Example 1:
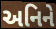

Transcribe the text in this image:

અનિને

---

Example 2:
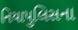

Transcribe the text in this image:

નિયાપુલિસના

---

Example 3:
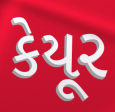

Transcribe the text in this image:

કેયૂર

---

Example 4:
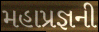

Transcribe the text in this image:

મહાપ્રજ્ઞની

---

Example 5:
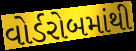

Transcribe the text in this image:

વોર્ડરોબમાંથી